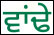
ਵਾਂਢੇ